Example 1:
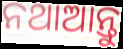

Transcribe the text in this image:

ନଥାଆନ୍ତୁ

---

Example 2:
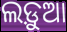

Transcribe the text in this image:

ଲଡ଼ୁଆ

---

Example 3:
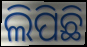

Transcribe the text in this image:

ଲିପିଛି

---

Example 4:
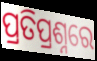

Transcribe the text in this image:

ପ୍ରତିପ୍ରଶ୍ନରେ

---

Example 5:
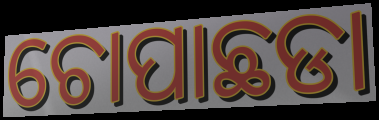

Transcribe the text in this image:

ଚୋପାଛଡା